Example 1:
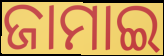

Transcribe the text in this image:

ଜାମାଇ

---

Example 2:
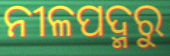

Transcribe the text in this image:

ନୀଳପଦ୍ମରୁ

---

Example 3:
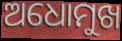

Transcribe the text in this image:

ଅଧୋମୁଖ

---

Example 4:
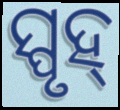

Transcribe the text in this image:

ସ୍ପୃହ୍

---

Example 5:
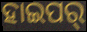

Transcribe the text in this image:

ହାଇପର୍